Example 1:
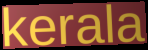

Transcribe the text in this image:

kerala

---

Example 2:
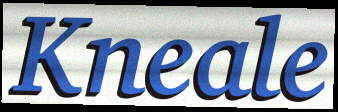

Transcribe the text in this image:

Kneale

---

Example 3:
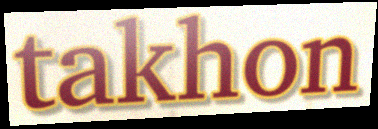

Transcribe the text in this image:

takhon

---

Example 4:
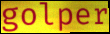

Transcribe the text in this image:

golper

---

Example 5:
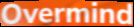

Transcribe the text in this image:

Overmind